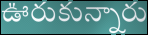
ఊరుకున్నారు